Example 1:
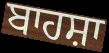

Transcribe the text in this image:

ਬਾਹਸ਼ਾ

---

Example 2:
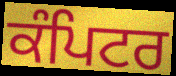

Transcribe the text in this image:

ਕੰਪਿਟਰ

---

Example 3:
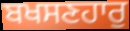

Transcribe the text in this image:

ਬਖਸਣਹਾਰੁ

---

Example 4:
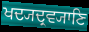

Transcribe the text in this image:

ਖਦ੍ਯਦ੍ਰਵ੍ਯਾਣਿ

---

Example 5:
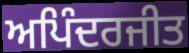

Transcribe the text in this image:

ਅਪਿੰਦਰਜੀਤ